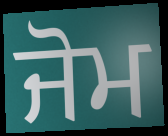
ਜੋਮ